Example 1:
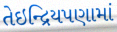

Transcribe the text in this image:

તેઇન્દ્રિયપણામાં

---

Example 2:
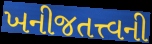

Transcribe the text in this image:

ખનીજતત્ત્વની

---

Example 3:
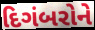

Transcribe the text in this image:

દિગંબરોને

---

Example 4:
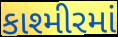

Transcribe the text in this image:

કાશ્મીરમાં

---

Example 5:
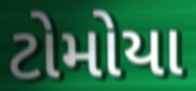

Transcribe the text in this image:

ટોમોયા